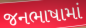
જનભાષામાં